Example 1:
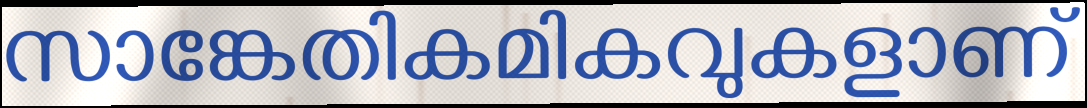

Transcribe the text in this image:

സാങ്കേതികമികവുകളാണ്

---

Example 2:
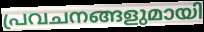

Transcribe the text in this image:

പ്രവചനങ്ങളുമായി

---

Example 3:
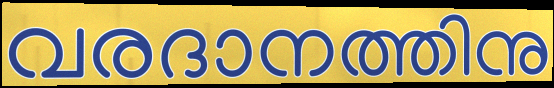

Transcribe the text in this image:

വരദാനത്തിനു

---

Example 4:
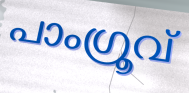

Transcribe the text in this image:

പാംഗ്രൂവ്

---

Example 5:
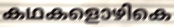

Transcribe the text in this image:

കഥകളൊഴികെ